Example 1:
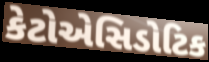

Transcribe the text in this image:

કેટોએસિડોટિક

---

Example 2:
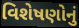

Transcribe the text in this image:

વિશેષણોનું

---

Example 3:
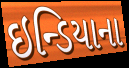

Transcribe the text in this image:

ઇન્ડિયાના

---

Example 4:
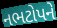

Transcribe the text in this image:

નભટોપને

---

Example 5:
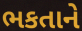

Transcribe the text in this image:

ભકતાને